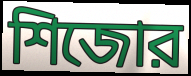
শিজোর